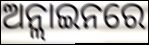
ଅନ୍ଲାଇନରେ